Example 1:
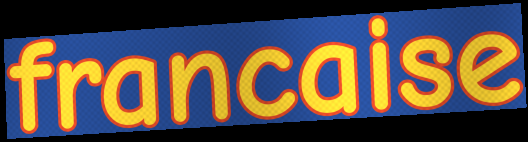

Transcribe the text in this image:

francaise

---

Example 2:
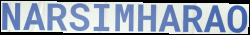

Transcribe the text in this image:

NARSIMHARAO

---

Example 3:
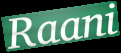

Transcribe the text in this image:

Raani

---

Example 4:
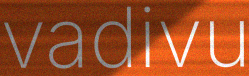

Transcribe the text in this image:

vadivu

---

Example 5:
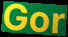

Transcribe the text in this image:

Gor